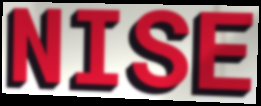
NISE